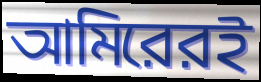
আমিরেরই